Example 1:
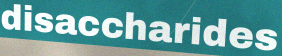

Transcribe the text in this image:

disaccharides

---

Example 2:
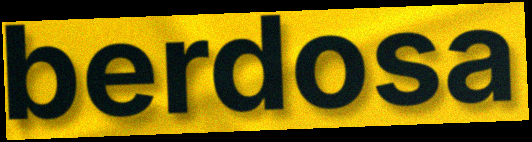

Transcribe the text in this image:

berdosa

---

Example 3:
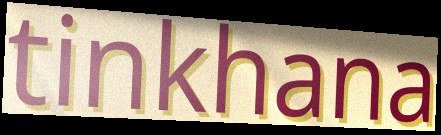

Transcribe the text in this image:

tinkhana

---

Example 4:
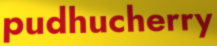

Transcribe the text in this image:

pudhucherry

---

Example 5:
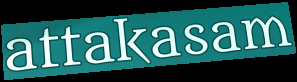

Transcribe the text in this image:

attakasam